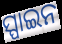
ସ୍ପାଇନ